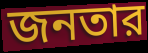
জনতার